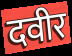
दवीर